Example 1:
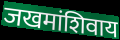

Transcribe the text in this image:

जखमांशिवाय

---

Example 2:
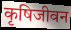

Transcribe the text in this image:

कृषिजीवन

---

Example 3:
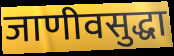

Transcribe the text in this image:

जाणीवसुद्धा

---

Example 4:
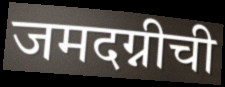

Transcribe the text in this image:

जमदग्नीची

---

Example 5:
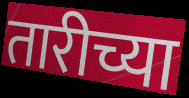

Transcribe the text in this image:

तारीच्या